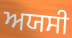
ਅਯਸੀ